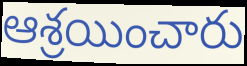
ఆశ్రయించారు